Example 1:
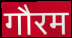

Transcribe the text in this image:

गौरम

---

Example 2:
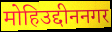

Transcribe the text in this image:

मोहिउद्दीननगर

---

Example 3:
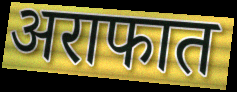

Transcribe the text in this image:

अराफात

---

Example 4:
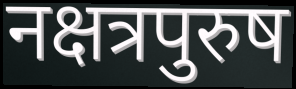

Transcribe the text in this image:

नक्षत्रपुरुष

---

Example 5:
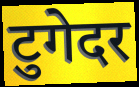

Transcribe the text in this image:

टुगेदर